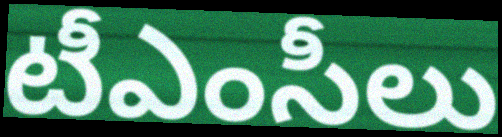
టీఎంసీలు